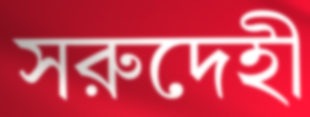
সরুদেহী